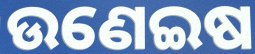
ଉଣେଇଷ